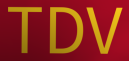
TDV